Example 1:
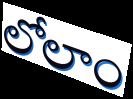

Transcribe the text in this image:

లోలాం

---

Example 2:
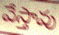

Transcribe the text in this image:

వేస్తావు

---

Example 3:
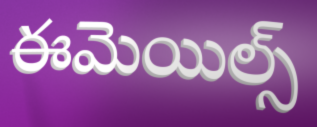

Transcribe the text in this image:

ఈమెయిల్స్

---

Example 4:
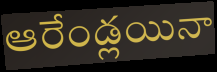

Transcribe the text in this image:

ఆరేండ్లయినా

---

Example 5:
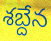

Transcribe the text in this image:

శబ్దేన